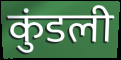
कुंडली